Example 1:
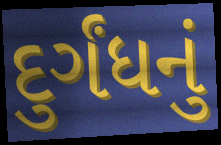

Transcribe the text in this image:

દુર્ગંધનું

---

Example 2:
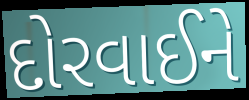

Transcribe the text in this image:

દોરવાઈને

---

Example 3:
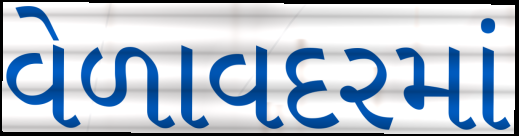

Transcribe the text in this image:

વેળાવદરમાં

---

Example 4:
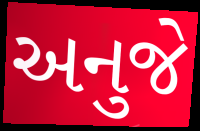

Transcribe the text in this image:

અનુજે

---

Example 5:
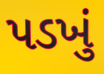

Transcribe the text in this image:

પડખું